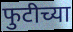
फुटीच्या